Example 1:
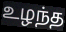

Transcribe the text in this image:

உழந்த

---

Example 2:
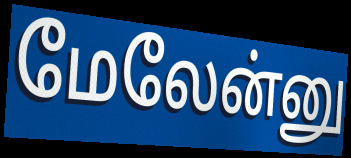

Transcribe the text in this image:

மேலேன்னு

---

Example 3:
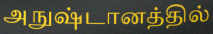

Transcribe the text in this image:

அநுஷ்டானத்தில்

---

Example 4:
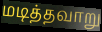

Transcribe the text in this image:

மடித்தவாறு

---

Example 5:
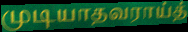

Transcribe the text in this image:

முடியாதவராய்த்